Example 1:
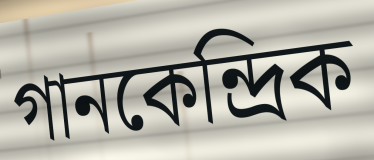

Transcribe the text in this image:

গানকেন্দ্রিক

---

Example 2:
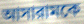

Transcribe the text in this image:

আসারামকে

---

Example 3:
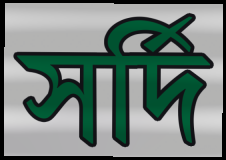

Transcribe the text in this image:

সর্দি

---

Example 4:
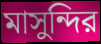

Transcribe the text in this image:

মাসুন্দির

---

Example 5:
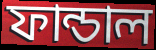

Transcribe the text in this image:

ফান্ডাল